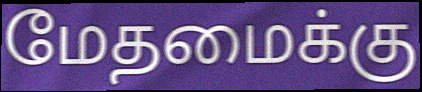
மேதமைக்கு